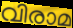
വിരാമ